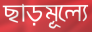
ছাড়মূল্যে